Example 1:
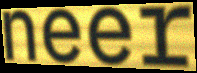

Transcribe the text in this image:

neer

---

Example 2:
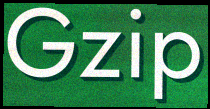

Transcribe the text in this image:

Gzip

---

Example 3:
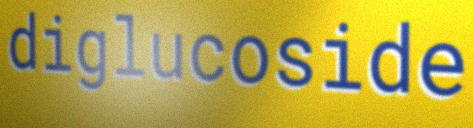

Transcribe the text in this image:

diglucoside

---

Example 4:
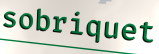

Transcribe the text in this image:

sobriquet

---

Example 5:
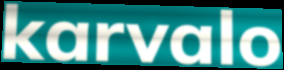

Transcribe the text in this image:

karvalo